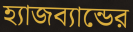
হ্যাজব্যান্ডের